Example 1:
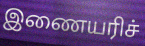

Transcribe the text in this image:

இணையரிச்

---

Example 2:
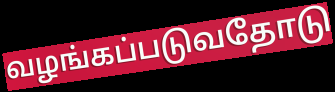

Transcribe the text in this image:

வழங்கப்படுவதோடு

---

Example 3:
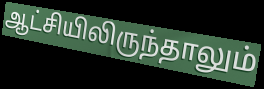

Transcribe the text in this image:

ஆட்சியிலிருந்தாலும்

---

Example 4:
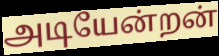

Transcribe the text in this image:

அடியேன்றன்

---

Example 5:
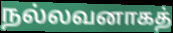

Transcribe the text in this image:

நல்லவனாகத்